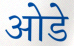
ओडे